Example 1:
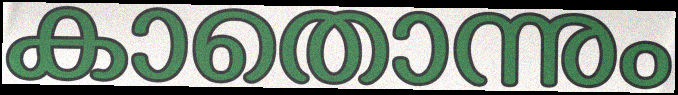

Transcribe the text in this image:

കാതൊന്നും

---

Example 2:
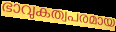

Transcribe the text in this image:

ഭാവുകത്വപരമായ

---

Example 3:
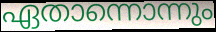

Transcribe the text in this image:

ഏതാന്നൊന്നും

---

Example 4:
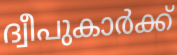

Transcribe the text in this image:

ദ്വീപുകാർക്ക്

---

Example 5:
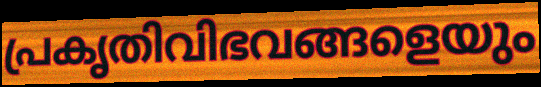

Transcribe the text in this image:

പ്രകൃതിവിഭവങ്ങളെയും